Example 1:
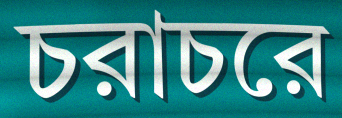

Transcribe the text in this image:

চরাচরে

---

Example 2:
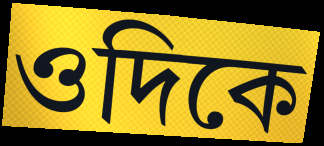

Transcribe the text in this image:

ওদিকে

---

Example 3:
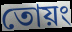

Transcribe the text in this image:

তোয়ং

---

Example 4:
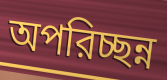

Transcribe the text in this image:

অপরিচ্ছন্ন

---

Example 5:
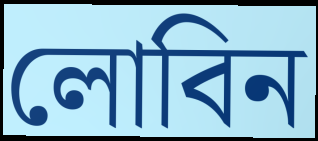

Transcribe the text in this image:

লোবিন